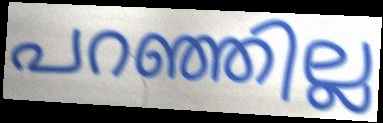
പറഞ്ഞില്ല